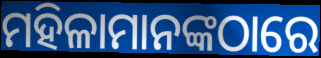
ମହିଳାମାନଙ୍କଠାରେ